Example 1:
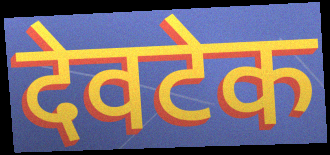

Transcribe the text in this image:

देवटेक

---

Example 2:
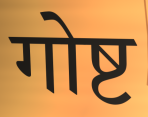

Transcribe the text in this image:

गोष्ट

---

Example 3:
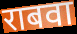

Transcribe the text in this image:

राबवा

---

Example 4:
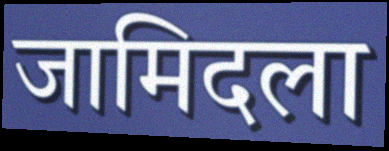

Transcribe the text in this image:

जामिदला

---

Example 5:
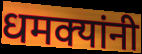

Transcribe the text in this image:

धमक्यांनी